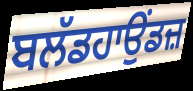
ਬਲੱਡਹਾਉਂਡਜ਼